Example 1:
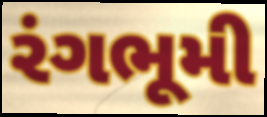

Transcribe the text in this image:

રંગભૂમી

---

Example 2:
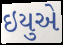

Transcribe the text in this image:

ઇયુએ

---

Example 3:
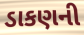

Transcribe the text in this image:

ડાકણની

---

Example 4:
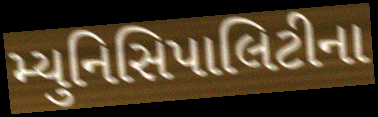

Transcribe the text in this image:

મ્યુનિસિપાલિટીના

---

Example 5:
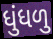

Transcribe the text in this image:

ધુંધળુ